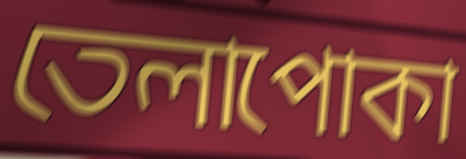
তেলাপোকা